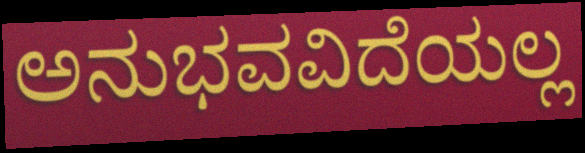
ಅನುಭವವಿದೆಯಲ್ಲ